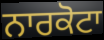
ਨਾਰਕੋਟਾ